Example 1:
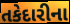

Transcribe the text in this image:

તકેદારીના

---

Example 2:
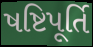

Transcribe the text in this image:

ષષ્ટિપૂર્તિ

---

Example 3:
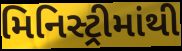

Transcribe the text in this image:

મિનિસ્ટ્રીમાંથી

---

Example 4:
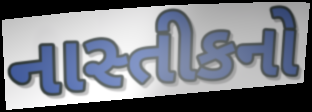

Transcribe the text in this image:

નાસ્તીકનો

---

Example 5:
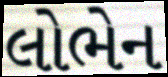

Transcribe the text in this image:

લોભેન